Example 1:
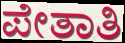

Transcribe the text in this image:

ಪೇತಾತಿ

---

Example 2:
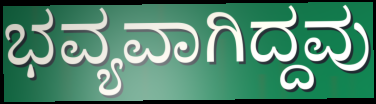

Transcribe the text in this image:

ಭವ್ಯವಾಗಿದ್ದವು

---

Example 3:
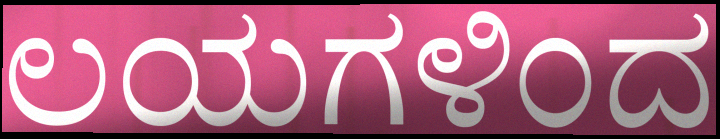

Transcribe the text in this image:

ಲಯಗಳಿಂದ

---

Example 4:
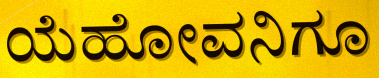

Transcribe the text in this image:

ಯೆಹೋವನಿಗೂ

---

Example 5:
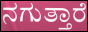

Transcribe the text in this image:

ನಗುತ್ತಾರೆ